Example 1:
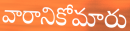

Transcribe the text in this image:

వారానికోమారు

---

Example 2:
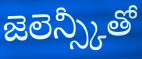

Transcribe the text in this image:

జెలెన్స్కీతో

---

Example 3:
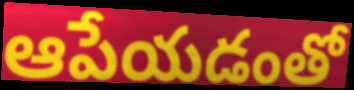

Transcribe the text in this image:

ఆపేయడంతో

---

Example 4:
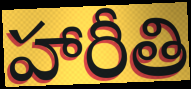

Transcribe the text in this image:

హారీతి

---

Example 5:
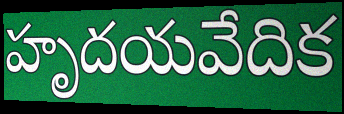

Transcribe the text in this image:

హృదయవేదిక